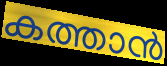
കത്താൻ